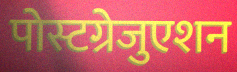
पोस्टग्रेजुएशन